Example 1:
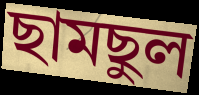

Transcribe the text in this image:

ছামছুল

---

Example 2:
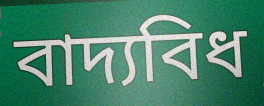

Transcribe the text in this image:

বাদ্যবিধ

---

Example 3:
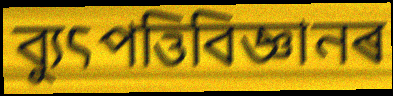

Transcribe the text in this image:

ব্যুৎপত্তিবিজ্ঞানৰ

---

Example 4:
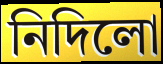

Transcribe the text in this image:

নিদিলো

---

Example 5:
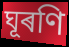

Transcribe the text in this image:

ঘূৰণি